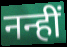
नन्‍हीं